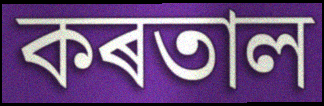
কৰতাল